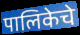
पालिकेचे